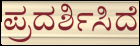
ಪ್ರದರ್ಶಿಸಿದೆ